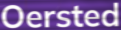
Oersted